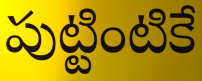
పుట్టింటికే